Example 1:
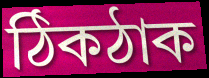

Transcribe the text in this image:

ঠিকঠাক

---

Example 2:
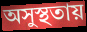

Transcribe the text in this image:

অসুস্থতায়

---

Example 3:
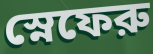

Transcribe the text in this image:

স্নেফেরু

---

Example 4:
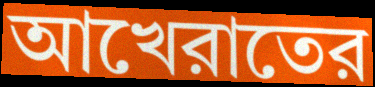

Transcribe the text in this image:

আখেরাতের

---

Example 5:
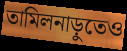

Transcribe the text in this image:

তামিলনাড়ুতেও